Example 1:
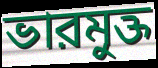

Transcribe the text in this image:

ভারমুক্ত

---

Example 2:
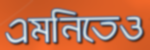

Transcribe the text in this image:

এমনিতেও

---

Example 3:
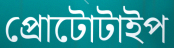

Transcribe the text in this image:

প্রোটোটাইপ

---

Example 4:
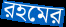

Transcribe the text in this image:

রহমের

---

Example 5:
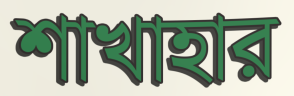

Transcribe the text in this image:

শাখাহার